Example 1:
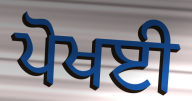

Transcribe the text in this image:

ਪੋਖਈ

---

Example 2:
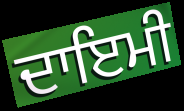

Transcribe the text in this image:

ਦਾਇਮੀ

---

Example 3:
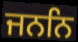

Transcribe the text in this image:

ਜਨਨਿ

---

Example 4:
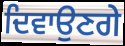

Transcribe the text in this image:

ਦਿਵਾਉਣਗੇ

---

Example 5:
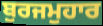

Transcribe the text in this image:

ਬੁਰਜਮੁਹਾਰ